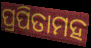
ପ୍ରପିତାମହ